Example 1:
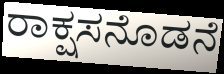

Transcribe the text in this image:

ರಾಕ್ಷಸನೊಡನೆ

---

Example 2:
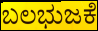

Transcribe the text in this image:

ಬಲಭುಜಕೆ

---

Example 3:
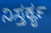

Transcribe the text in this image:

ನಿಸ್ತರ್ಕ್ಯ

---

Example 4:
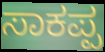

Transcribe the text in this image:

ಸಾಕಪ್ಪ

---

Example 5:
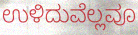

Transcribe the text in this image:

ಉಳಿದುವೆಲ್ಲವೂ